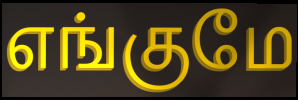
எங்குமே